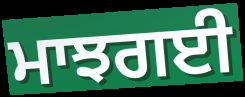
ਮਾਝਗਈ